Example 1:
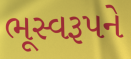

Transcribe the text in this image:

ભૂસ્વરૂપને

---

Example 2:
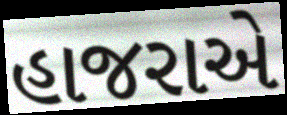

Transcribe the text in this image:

હાજરાએ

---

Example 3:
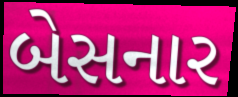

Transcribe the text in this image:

બેસનાર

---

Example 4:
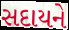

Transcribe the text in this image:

સદાયને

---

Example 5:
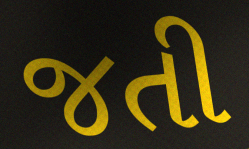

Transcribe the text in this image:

જતી